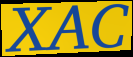
XAC